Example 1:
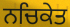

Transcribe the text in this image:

ਨਚਿਕੇਤ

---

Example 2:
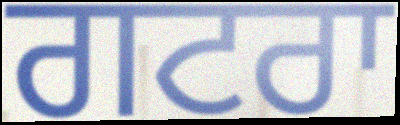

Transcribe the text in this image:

ਗਟਰਾ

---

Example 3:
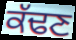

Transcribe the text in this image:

ਕੱਢਣ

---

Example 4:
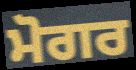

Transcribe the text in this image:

ਮੋਗਰ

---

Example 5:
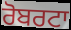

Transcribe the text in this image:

ਰੋਬਰਟਾ